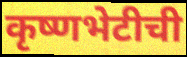
कृष्णभेटीची